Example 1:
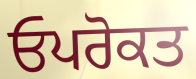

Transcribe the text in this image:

ਓਪਰੋਕਤ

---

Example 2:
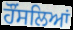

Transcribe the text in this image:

ਹੌਂਸਲਿਆਂ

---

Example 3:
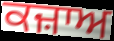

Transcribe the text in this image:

ਕਜ਼ਾਅ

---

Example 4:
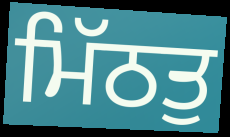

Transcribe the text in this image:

ਮਿੱਠਤੁ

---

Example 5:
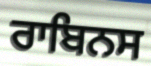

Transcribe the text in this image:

ਰਾਬਿਨਸ